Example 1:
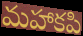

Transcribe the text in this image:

మహాకపి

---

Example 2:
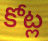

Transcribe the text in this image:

కోట్ల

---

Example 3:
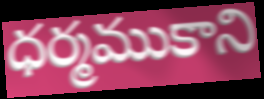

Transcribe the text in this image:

ధర్మముకాని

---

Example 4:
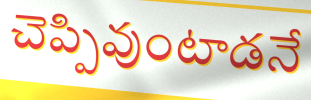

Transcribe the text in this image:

చెప్పివుంటాడనే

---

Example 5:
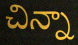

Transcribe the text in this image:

చిన్నా